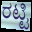
ರಟ್ಟಿ